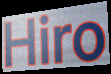
Hiro